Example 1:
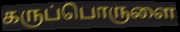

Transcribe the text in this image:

கருப்பொருளை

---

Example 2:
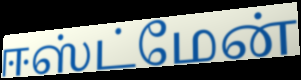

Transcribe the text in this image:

ஈஸ்ட்மேன்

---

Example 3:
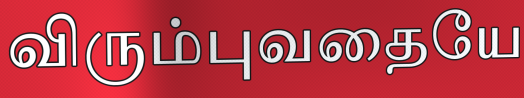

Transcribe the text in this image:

விரும்புவதையே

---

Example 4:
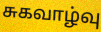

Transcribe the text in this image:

சுகவாழ்வு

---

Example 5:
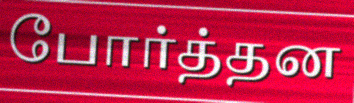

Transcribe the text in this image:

போர்த்தன